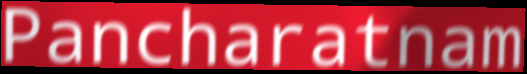
Pancharatnam